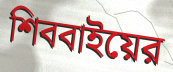
শিববাইয়ের